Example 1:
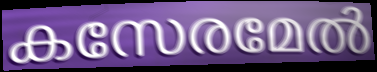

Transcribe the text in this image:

കസേരമേൽ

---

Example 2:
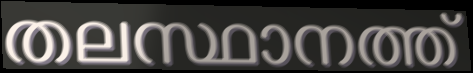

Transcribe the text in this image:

തലസ്ഥാനത്ത്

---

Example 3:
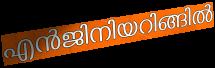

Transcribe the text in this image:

എൻജിനിയറിങ്ങിൽ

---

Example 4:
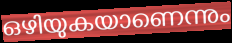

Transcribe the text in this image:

ഒഴിയുകയാണെന്നും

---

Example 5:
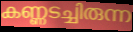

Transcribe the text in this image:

കണ്ണടച്ചിരുന്ന